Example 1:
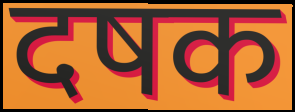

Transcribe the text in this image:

दषक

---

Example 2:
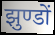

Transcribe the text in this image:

झुण्डों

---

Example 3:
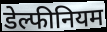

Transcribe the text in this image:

डेल्फीनियम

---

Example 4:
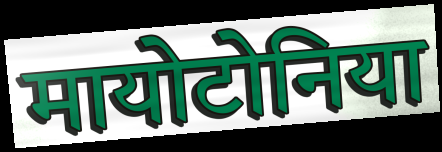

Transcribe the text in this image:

मायोटोनिया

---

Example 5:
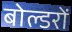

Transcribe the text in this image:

बोल्डरों